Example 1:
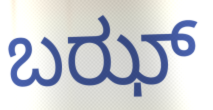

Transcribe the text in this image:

ಬಝ್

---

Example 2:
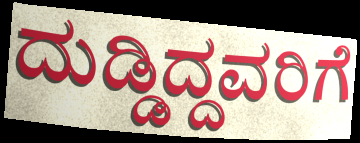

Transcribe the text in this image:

ದುಡ್ಡಿದ್ದವರಿಗೆ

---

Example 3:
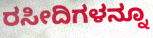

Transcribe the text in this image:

ರಸೀದಿಗಳನ್ನೂ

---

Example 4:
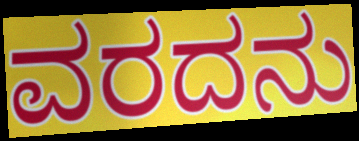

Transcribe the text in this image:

ವರದನು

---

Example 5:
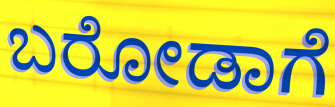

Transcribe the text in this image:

ಬರೋಡಾಗೆ